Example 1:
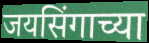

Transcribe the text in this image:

जयसिंगाच्या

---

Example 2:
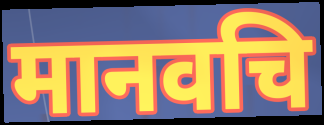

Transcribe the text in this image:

मानवचि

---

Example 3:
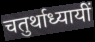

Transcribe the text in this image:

चतुर्थाध्यायीं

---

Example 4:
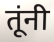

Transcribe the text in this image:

तूंनी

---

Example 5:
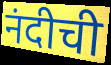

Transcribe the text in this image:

नंदीची